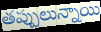
తప్పులున్నాయి